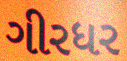
ગીરધર